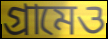
গ্রামেও